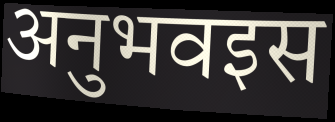
अनुभवइस